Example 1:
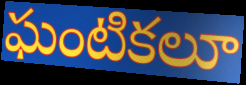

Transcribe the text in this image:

ఘంటికలూ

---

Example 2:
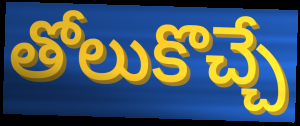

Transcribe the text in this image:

తోలుకొచ్చే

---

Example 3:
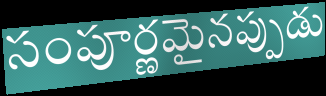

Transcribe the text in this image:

సంపూర్ణమైనప్పుడు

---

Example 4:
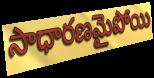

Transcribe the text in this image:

సాధారణమైపోయి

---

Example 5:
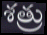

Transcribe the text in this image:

శత్రు